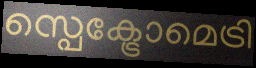
സ്പെക്ട്രോമെട്രി